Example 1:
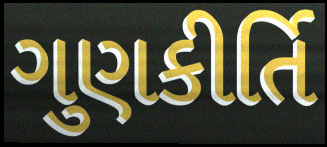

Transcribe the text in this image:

ગુણકીર્તિ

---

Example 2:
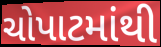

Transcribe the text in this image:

ચોપાટમાંથી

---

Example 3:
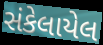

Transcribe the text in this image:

સંકેલાયેલ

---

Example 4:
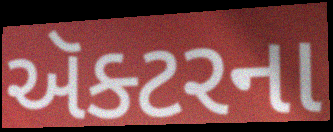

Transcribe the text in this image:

ઍક્ટરના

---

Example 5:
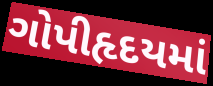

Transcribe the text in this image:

ગોપીહૃદયમાં